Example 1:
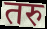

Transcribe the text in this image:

तरु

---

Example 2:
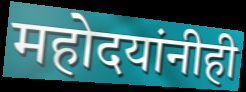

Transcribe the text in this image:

महोदयांनीही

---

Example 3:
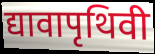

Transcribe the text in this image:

द्यावापृथिवी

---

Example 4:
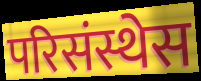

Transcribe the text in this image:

परिसंस्थेस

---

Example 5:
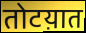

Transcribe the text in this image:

तोटय़ात